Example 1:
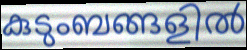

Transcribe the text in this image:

കുടുംബങ്ങളിൽ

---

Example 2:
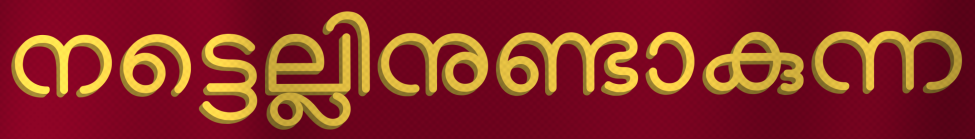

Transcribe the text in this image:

നട്ടെല്ലിനുണ്ടാകുന്ന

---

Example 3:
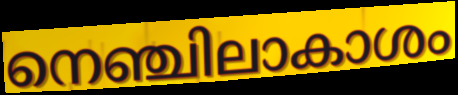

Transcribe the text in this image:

നെഞ്ചിലാകാശം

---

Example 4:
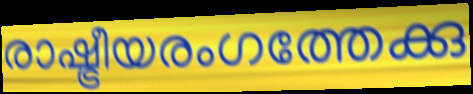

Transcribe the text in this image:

രാഷ്ട്രീയരംഗത്തേക്കു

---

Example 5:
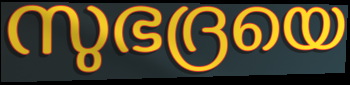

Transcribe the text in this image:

സുഭദ്രയെ